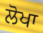
ਲੋਖਾ